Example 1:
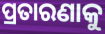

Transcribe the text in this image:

ପ୍ରତାରଣାକୁ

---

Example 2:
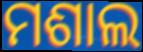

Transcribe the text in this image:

ମଶାଲ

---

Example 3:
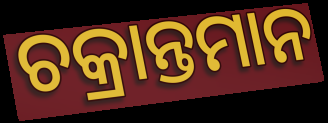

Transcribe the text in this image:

ଚକ୍ରାନ୍ତମାନ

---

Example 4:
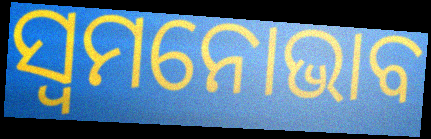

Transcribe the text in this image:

ସ୍ୱମନୋଭାବ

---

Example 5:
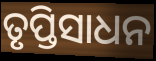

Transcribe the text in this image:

ତୃପ୍ତିସାଧନ